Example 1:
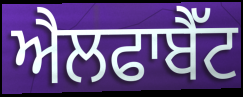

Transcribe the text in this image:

ਐਲਫਾਬੈੱਟ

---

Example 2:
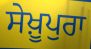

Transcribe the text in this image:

ਸੇਖ਼ੂਪੁਰਾ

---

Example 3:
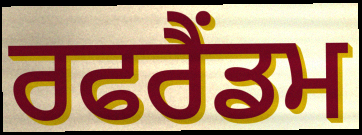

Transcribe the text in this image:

ਰਫਰੈਂਡਮ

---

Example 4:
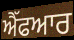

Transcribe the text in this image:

ਐੱਫਆਰ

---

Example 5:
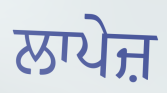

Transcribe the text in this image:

ਲਾਪੇਜ਼